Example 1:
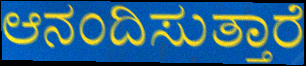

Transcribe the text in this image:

ಆನಂದಿಸುತ್ತಾರೆ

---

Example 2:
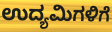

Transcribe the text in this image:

ಉದ್ಯಮಿಗಳಿಗೆ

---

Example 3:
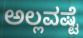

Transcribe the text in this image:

ಅಲ್ಲವಷ್ಟೆ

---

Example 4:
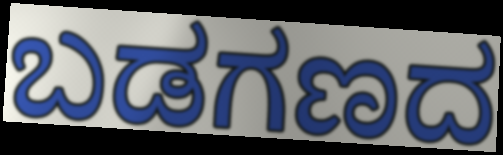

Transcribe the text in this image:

ಬಡಗಣದ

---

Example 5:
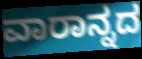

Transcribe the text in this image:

ವಾರಾನ್ನದ